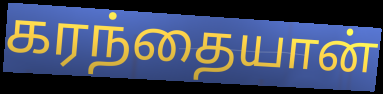
கரந்தையான்